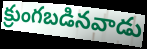
క్రుంగబడినవాడు